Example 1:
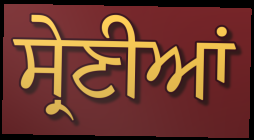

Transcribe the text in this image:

ਸ੍ਰੇਣੀਆਂ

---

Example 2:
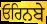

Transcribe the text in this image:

ਓਰਿਨਬੇ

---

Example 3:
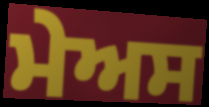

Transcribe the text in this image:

ਮੇਅਸ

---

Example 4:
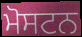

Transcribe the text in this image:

ਮੋਸਟਨ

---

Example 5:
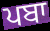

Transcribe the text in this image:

ਪਬਾ